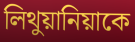
লিথুয়ানিয়াকে